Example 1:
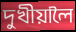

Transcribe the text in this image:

দুখীয়ালৈ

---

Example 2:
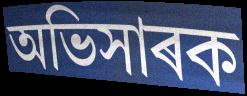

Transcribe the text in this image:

অভিসাৰক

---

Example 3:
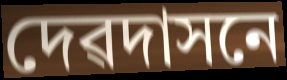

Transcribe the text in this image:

দেৱদাসনে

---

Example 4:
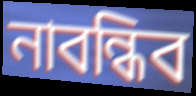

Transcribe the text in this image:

নাবন্ধিব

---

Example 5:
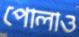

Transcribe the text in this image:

পোলাও